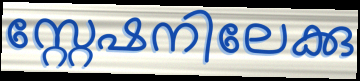
സ്റ്റേഷനിലേക്കു